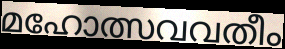
മഹോത്സവവതീം